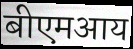
बीएमआय